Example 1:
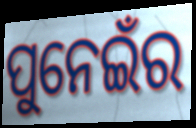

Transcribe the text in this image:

ପୁନେଇଁର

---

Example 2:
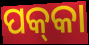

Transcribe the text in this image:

ପକ୍‌କା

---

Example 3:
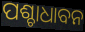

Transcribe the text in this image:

ପଶ୍ଚାଧାବନ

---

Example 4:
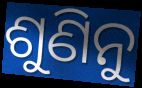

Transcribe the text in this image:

ଶୁଣିନୁ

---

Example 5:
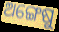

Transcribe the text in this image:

ଅଙ୍ଗେଷୁ